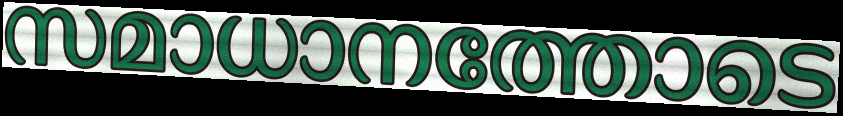
സമാധാനത്തോടെ